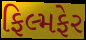
ફિલ્મફેર